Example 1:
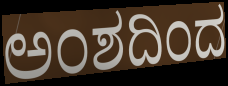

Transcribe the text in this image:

ಅಂಶದಿಂದ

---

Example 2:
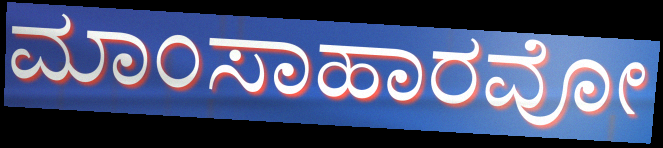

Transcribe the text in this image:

ಮಾಂಸಾಹಾರವೋ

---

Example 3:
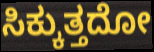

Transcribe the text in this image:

ಸಿಕ್ಕುತ್ತದೋ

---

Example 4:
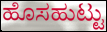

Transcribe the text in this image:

ಹೊಸಹುಟ್ಟು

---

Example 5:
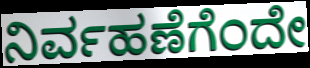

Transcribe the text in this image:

ನಿರ್ವಹಣೆಗೆಂದೇ